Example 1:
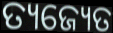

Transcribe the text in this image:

ତ୍ୟଜ୍ୟେତ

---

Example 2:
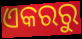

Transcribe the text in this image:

ଏକରରୁ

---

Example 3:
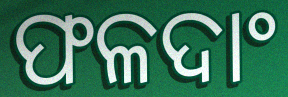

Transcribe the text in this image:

ଫଳଦାଂ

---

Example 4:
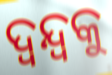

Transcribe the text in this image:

ଦ୍ଵନ୍ଦ୍ଵକୁ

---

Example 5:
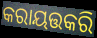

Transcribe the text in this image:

କରାୟତ୍ତକରି